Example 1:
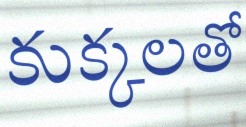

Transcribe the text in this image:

కుక్కలతో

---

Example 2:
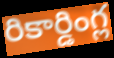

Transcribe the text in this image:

రికార్డింగ్ల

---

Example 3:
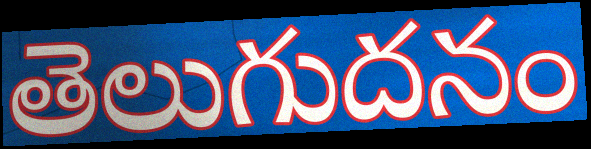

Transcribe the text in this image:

తెలుగుదనం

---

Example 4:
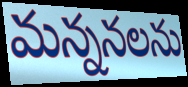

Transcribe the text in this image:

మన్ననలను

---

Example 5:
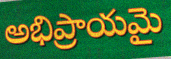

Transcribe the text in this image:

అభిప్రాయమై